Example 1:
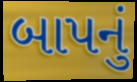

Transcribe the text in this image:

બાપનું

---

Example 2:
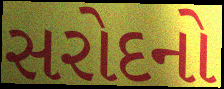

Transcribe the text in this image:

સરોદનો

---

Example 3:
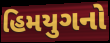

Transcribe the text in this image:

હિમયુગનો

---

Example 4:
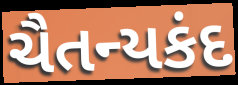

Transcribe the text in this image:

ચૈતન્યકંદ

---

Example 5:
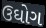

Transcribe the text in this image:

ઉઘોગ